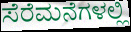
ಸೆರೆಮನೆಗಳಲ್ಲಿ